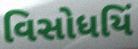
વિસોધયિં